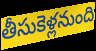
తీసుకెళ్లనుంది